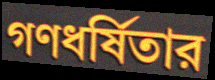
গণধর্ষিতার